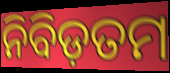
ନିବିଡ଼ତମ